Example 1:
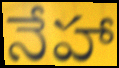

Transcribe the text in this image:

నేహా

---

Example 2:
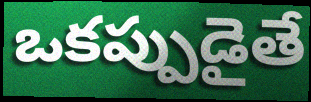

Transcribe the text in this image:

ఒకప్పుడైతే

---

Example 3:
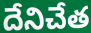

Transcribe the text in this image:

దేనిచేత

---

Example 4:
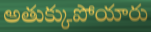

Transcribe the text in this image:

అతుక్కుపోయారు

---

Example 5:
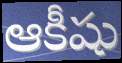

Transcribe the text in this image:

ఆకీషు